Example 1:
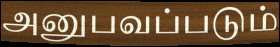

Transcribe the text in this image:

அனுபவப்படும்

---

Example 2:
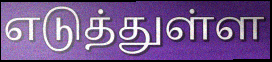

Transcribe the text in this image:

எடுத்துள்ள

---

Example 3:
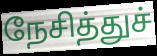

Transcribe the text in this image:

நேசித்துச்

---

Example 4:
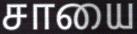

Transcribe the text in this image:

சாயை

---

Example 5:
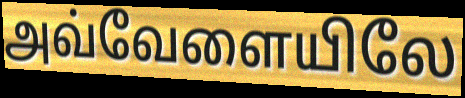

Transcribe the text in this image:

அவ்வேளையிலே